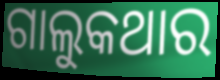
ଗାଲୁକଥାର